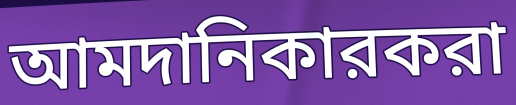
আমদানিকারকরা